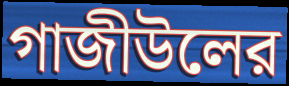
গাজীউলের